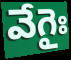
వేగైః